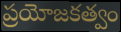
ప్రయోజకత్వం